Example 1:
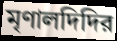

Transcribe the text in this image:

মৃণালদিদির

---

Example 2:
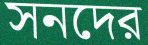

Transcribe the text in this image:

সনদের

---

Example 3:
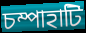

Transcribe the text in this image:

চম্পাহাটি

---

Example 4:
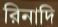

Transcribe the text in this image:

রিনাদি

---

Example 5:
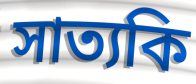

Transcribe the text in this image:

সাত্যকি